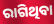
ରାଗିଥିବା